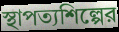
স্থাপত্যশিল্পের